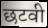
छटवी